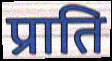
प्राति